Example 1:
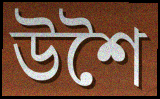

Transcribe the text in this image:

উশৈ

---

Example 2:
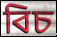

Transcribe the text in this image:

বিচ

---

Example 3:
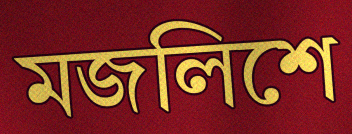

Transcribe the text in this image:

মজলিশে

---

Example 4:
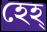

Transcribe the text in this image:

হেহ্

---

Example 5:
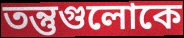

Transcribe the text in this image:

তন্তুগুলোকে